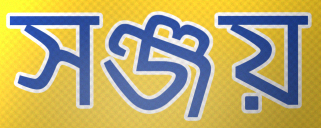
সঞ্জয়